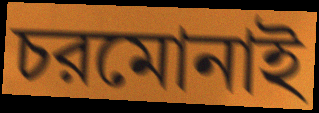
চরমোনাই